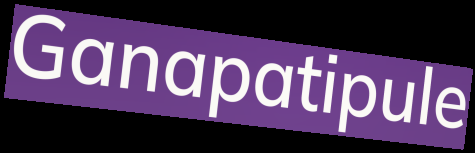
Ganapatipule